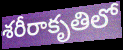
శరీరాకృతిలో